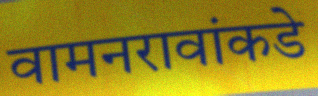
वामनरावांकडे